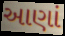
આણાં